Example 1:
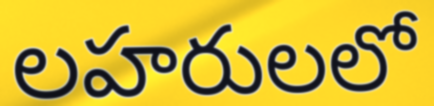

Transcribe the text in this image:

లహరులలో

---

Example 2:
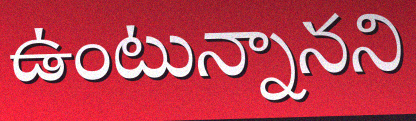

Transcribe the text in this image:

ఉంటున్నానని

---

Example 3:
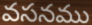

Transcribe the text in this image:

వసనము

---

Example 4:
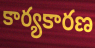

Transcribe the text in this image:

కార్యకారణ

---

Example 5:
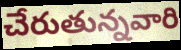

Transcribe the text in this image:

చేరుతున్నవారి